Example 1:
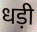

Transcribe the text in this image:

धड़ी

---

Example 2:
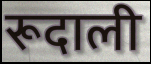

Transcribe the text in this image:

रूदाली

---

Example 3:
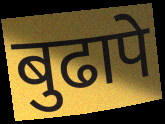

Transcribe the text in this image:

बुढापे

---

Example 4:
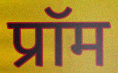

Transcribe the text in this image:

प्रॉम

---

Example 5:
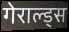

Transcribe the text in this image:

गेराल्ड्स